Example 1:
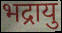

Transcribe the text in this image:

भद्रायु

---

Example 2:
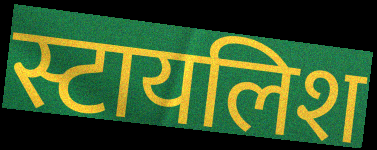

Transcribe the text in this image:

स्टायलिश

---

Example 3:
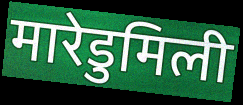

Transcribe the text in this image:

मारेडुमिली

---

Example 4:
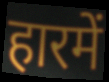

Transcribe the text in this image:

हारमें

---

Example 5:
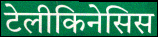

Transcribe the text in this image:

टेलीकिनेसिस